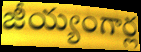
జీయ్యంగార్ల